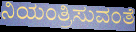
ನಿಯಂತ್ರಿಸುವಂತೆ